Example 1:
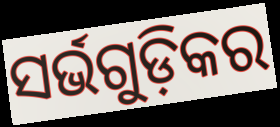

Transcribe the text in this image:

ସର୍ଭଗୁଡ଼ିକର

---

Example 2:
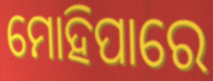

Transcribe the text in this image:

ମୋହିପାରେ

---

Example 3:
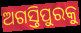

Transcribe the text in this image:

ଅଗସ୍ତିପୁରକୁ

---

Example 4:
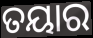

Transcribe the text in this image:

ତୟାର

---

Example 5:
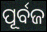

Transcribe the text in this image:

ପୂର୍ବଜ